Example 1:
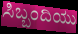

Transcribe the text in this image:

ಸಿಬ್ಬಂದಿಯು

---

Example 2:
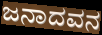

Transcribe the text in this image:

ಜನಾದವನ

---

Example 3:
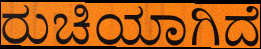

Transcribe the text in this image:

ರುಚಿಯಾಗಿದೆ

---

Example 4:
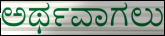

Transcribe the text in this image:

ಅರ್ಥವಾಗಲು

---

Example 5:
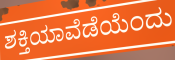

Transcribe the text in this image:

ಶಕ್ತಿಯಾವೆಡೆಯೆಂದು